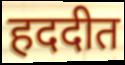
हददीत